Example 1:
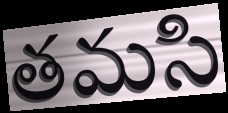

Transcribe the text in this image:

తమసి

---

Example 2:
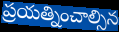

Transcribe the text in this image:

ప్రయత్నించాల్సిన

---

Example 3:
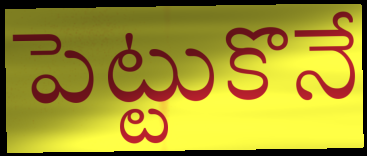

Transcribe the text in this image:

పెట్టుకొనే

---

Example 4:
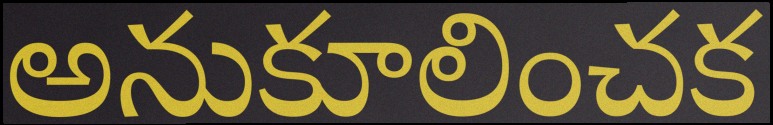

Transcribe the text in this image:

అనుకూలించక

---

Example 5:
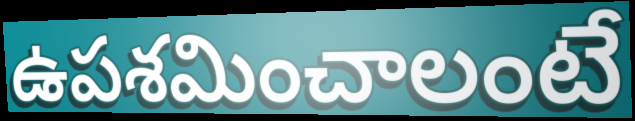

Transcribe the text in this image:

ఉపశమించాలంటే